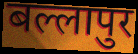
बल्लापुर